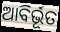
ଆବିର୍ଭୂତ